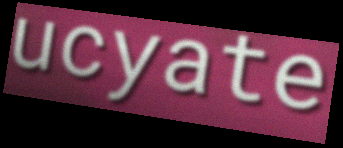
ucyate